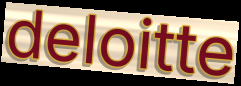
deloitte